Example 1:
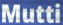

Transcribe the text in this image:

Mutti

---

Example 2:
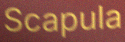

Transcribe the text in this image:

Scapula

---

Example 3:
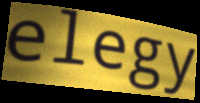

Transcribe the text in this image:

elegy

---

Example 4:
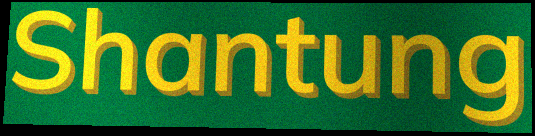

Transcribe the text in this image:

Shantung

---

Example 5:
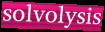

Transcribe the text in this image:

solvolysis